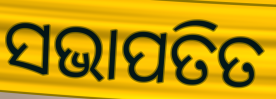
ସଭାପତିତ